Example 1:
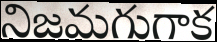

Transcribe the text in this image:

నిజమగుగాక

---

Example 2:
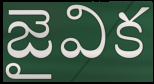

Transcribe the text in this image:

జైవిక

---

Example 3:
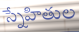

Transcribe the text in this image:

స్నేహితుల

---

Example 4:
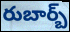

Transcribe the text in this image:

రుబార్బ్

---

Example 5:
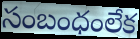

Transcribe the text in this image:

సంబంధంలేక